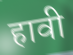
हावी